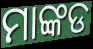
ମାଙ୍କଡ